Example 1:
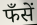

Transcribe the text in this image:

फँसें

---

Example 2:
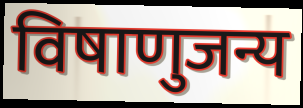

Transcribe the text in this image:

विषाणुजन्य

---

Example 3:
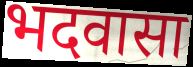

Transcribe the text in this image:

भदवासा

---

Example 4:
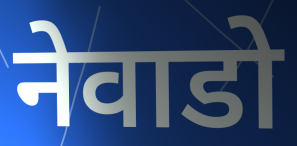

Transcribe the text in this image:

नेवाडो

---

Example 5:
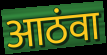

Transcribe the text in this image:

आठंवा